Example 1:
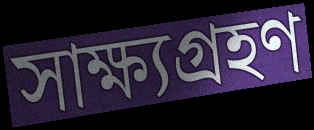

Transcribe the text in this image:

সাক্ষ্যগ্রহণ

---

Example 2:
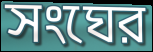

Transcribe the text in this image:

সংঘের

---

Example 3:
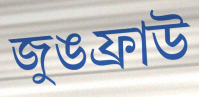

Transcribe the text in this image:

জুঙফ্রাউ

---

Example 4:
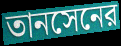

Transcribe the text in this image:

তানসেনের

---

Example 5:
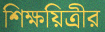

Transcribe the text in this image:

শিক্ষয়িত্রীর